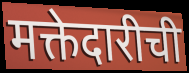
मक्तेदारीची